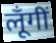
लूँगीं